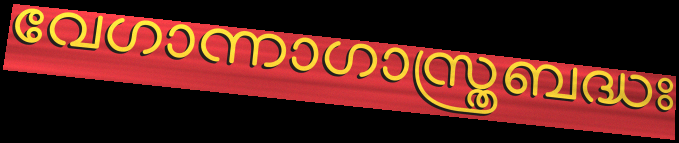
വേഗാന്നാഗാസ്ത്രബദ്ധഃ